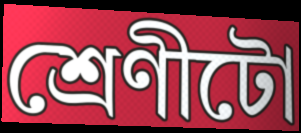
শ্ৰেণীটো